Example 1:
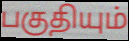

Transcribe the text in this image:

பகுதியும்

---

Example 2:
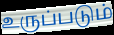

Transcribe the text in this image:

உருப்படும்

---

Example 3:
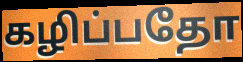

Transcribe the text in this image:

கழிப்பதோ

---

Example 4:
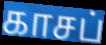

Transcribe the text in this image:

காசப்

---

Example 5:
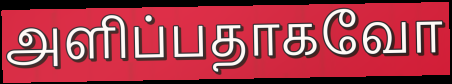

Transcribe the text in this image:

அளிப்பதாகவோ